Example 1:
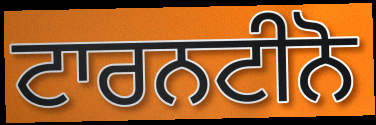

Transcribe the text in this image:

ਟਾਰਨਟੀਨੋ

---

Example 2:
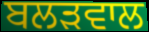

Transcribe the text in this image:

ਬਲੜਵਾਲ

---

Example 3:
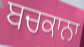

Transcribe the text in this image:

ਬਚਕਾਨਾ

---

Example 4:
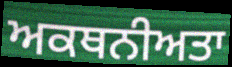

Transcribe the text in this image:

ਅਕਥਨੀਅਤਾ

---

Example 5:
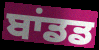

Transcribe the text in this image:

ਬਾਂਡਡ